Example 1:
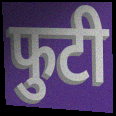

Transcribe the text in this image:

फुटी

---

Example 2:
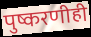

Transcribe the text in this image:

पुष्करणीही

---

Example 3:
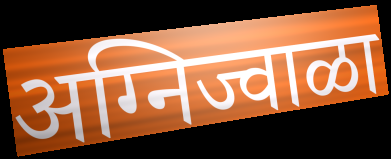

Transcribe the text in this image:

अग्निज्वाळा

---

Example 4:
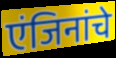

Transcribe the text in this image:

एंजिनांचे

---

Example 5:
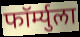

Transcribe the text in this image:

फॉर्म्युला